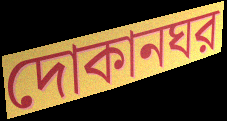
দোকানঘর